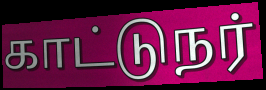
காட்டுநர்